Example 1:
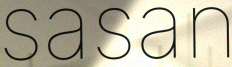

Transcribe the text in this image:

sasan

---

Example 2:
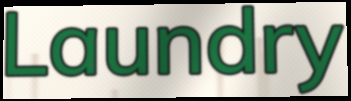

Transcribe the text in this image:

Laundry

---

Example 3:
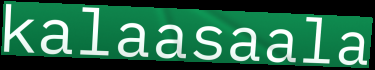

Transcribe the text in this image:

kalaasaala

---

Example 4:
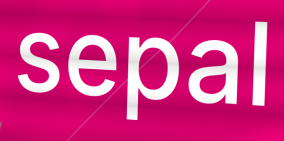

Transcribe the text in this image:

sepal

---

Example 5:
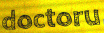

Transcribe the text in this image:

doctoru